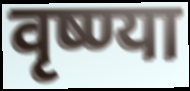
वृष्ण्या